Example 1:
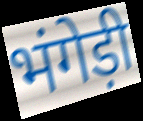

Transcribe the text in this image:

भंगेड़ी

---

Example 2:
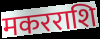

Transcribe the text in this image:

मकरराशि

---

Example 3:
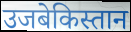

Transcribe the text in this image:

उजबेकिस्तान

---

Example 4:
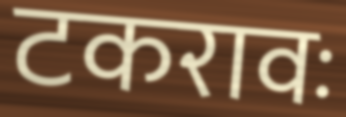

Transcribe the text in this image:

टकरावः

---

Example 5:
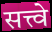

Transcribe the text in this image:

सत्त्वे